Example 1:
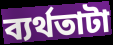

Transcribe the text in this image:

ব্যর্থতাটা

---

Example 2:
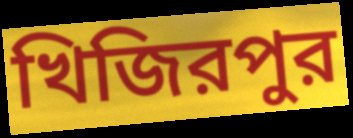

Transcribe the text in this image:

খিজিরপুর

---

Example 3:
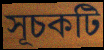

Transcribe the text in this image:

সূচকটি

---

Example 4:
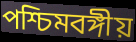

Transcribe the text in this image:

পশ্চিমবঙ্গীয়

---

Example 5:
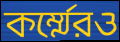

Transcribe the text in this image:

কর্ম্মেরও